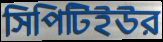
সিপিটিইউর